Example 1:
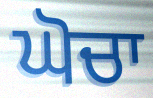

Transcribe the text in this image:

ਘੋਚਾ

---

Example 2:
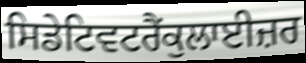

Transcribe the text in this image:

ਸਿਡੇਟਿਵਟਰੈਂਕੁਲਾਈਜ਼ਰ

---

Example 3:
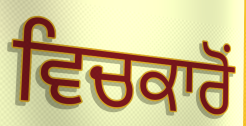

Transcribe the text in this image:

ਵਿਚਕਾਰੋਂ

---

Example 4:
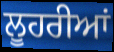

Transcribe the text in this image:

ਲੂਹਰੀਆਂ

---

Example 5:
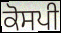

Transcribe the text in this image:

ਕੋਸਪੀ